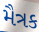
મૈત્રક